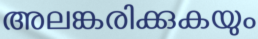
അലങ്കരിക്കുകയും